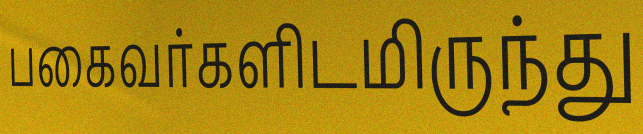
பகைவர்களிடமிருந்து